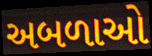
અબળાઓ